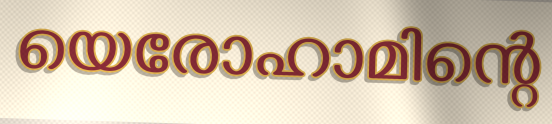
യെരോഹാമിന്റെ